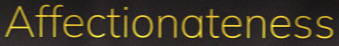
Affectionateness